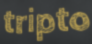
tripto